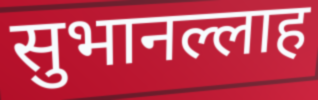
सुभानल्लाह